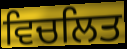
ਵਿਚਲਿਤ